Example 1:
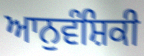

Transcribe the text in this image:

ਆਨੁਵੰਸ਼ਿਕੀ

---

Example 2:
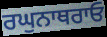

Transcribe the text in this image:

ਰਘੁਨਾਥਰਾਓ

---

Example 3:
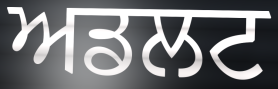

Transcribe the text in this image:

ਅਡਲਟ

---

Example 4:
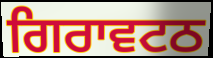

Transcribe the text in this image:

ਗਿਰਾਵਟਠ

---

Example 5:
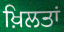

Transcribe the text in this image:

ਖ਼ਿਲਤਾਂ